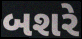
બશરે